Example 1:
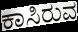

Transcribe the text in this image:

ಕಾಸಿರುವ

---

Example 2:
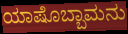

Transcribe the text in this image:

ಯಾಷೊಬ್ಬಾಮನು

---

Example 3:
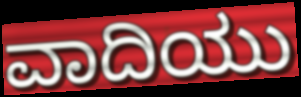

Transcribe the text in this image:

ವಾದಿಯು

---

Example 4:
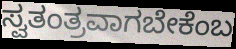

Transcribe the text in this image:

ಸ್ವತಂತ್ರವಾಗಬೇಕೆಂಬ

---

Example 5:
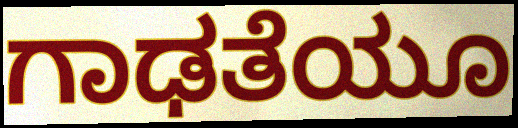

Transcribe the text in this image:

ಗಾಢತೆಯೂ